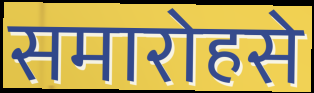
समारोहसे